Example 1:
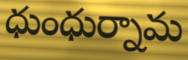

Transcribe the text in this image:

ధుంధుర్నామ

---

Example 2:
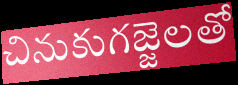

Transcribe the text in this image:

చినుకుగజ్జెలతో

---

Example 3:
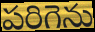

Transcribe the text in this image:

పరిగెను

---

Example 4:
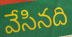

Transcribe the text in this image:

వేసినది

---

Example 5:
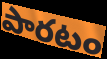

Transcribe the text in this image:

పారటం